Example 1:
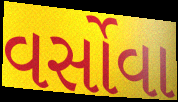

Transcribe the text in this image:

વર્સોવા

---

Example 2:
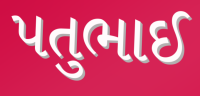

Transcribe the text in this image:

પતુભાઈ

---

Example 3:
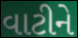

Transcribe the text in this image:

વાટીને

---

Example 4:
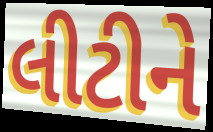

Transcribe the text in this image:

લીટીને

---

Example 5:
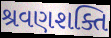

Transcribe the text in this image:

શ્રવણશક્તિ